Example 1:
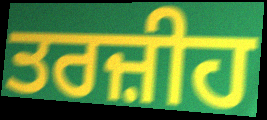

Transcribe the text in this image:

ਤਰਜ਼ੀਹ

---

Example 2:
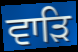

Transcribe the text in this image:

ਵਾੜਿ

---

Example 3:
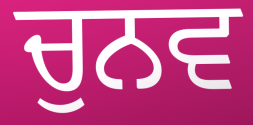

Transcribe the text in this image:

ਚੁਨਵ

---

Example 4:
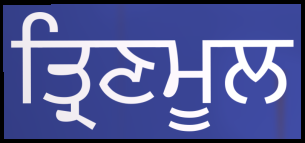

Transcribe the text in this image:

ਤ੍ਰਿਣਮੂਲ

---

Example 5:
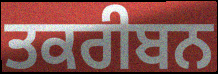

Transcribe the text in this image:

ਤਕਰੀਬਨ